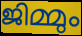
ജിമ്മും